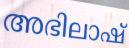
അഭിലാഷ്